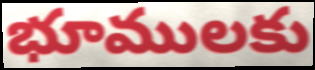
భూములకు